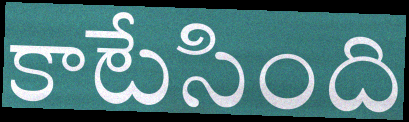
కాటేసింది